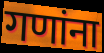
गणांना